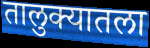
तालुक्यातला